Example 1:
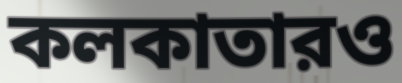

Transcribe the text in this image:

কলকাতারও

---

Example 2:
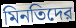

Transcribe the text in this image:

মিনতিদের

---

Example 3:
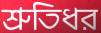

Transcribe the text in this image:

শ্রুতিধর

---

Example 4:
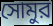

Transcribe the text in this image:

সোমুর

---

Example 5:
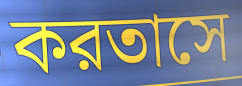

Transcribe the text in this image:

করতাসে